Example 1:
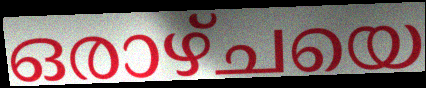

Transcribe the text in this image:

ഒരാഴ്ചയെ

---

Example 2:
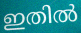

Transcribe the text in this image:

ഇതിൽ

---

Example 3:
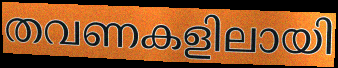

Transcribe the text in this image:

തവണകളിലായി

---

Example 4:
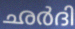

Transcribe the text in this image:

ഛർദി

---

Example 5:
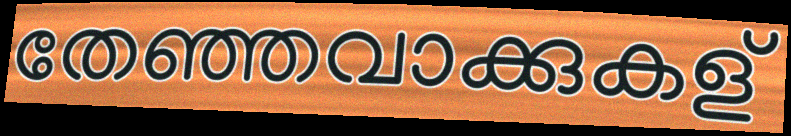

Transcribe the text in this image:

തേഞ്ഞവാക്കുകള്